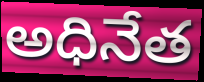
అధినేత